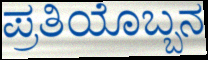
ಪ್ರತಿಯೊಬ್ಬನ